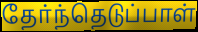
தேர்ந்தெடுப்பாள்